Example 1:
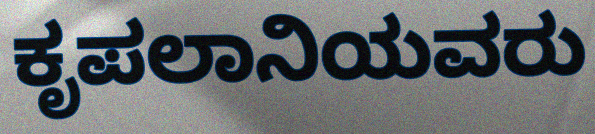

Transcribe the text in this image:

ಕೃಪಲಾನಿಯವರು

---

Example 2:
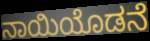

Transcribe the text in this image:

ನಾಯಿಯೊಡನೆ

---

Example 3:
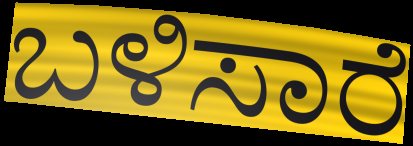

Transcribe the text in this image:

ಬಳಿಸಾರೆ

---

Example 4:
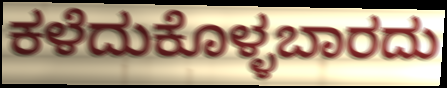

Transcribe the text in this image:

ಕಳೆದುಕೊಳ್ಳಬಾರದು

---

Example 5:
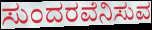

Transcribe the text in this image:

ಸುಂದರವೆನಿಸುವ